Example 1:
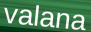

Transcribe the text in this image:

valana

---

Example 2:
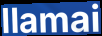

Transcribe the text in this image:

Ilamai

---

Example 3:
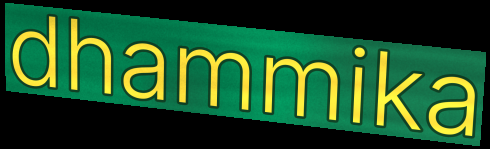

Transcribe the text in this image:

dhammika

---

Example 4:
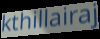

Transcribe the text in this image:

kthillairaj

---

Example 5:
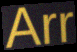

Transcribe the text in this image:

Arr